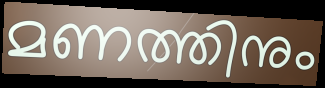
മണത്തിനും